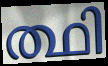
ത്ഥി